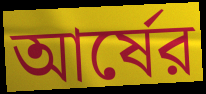
আর্ষের